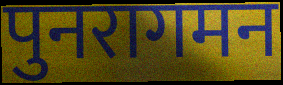
पुनरागमन